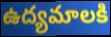
ఉద్యమాలకి